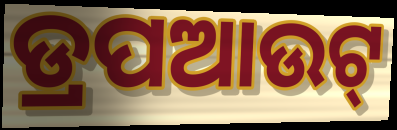
ଡ୍ରପଆଉଟ୍